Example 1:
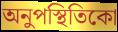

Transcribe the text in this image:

অনুপস্থিতিকো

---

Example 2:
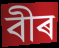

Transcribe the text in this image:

বীৰ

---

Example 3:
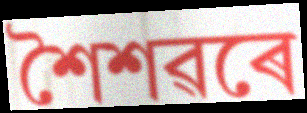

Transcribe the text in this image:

শৈশৱৰে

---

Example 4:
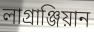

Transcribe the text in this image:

লাগ্ৰাঞ্জিয়ান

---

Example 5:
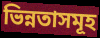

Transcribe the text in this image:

ভিন্নতাসমূহ